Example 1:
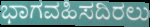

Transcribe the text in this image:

ಭಾಗವಹಿಸದಿರಲು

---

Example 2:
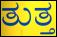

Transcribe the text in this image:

ತುತ್ತ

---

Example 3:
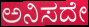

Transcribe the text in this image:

ಅನಿಸದೇ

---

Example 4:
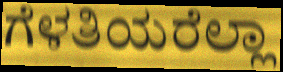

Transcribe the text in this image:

ಗೆಳತಿಯರೆಲ್ಲಾ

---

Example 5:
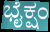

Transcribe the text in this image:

ಭೈಕ್ಷಂ